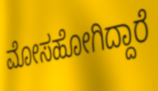
ಮೋಸಹೋಗಿದ್ದಾರೆ